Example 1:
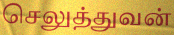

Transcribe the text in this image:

செலுத்துவன்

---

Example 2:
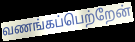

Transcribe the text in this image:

வணங்கப்பெற்றேன்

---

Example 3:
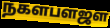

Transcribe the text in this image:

நகளபளஜள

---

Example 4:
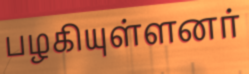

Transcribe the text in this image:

பழகியுள்ளனர்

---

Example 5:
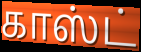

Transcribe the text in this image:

காஸ்ட்